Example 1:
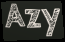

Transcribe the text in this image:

Azy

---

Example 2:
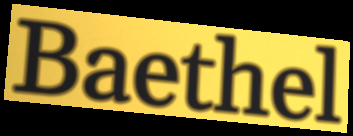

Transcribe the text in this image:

Baethel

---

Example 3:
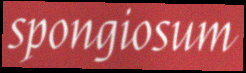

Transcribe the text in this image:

spongiosum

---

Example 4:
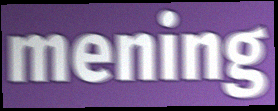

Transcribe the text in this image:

mening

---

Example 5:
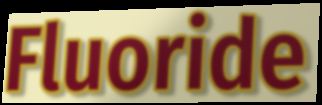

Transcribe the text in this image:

Fluoride